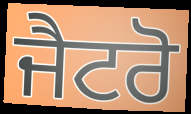
ਜੈਟਰੋ